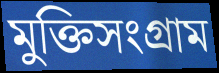
মুক্তিসংগ্রাম